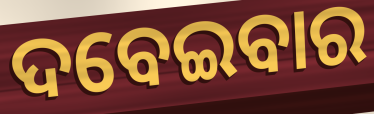
ଦବେଇବାର